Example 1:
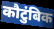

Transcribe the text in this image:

कौटुंबिक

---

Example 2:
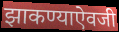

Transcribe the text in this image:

झाकण्याऐवजी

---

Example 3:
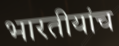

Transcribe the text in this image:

भारतीयांच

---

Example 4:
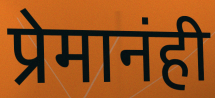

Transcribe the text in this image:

प्रेमानंही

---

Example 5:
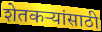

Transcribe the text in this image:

शेतकऱ्यांसाठी